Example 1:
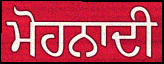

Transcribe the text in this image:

ਮੋਹਨਾਦੀ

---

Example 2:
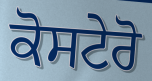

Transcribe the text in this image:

ਕੋਸਟੇਰੋ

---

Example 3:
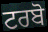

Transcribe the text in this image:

ਟਰਬੋ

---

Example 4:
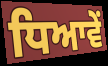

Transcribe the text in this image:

ਧਿਆਵੇਂ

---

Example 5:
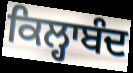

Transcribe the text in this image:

ਕਿਲ੍ਹਾਬੰਦ